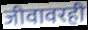
जीवावरही